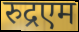
रुद्रएम